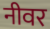
नीवर